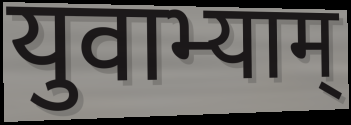
युवाभ्याम्